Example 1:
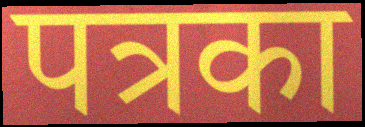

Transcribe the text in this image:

पत्रका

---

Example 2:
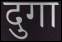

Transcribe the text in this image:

दुगा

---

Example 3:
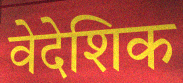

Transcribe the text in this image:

वेदेशिक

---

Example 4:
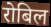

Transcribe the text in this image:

रोबिल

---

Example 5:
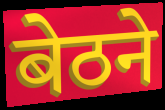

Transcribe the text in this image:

बेठने